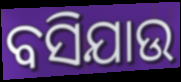
ବସିଯାଉ